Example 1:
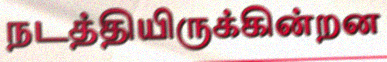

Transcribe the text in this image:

நடத்தியிருக்கின்றன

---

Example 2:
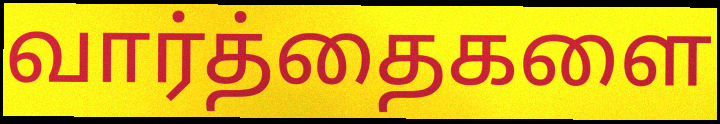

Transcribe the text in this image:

வார்த்தைகளை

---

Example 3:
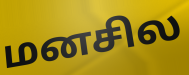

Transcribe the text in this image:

மனசில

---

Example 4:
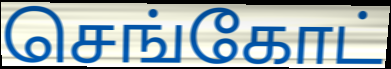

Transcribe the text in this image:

செங்கோட்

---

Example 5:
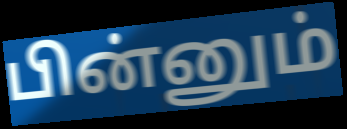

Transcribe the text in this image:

பின்னும்